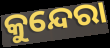
କୁନ୍ଦେରା